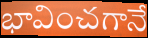
భావించగానే